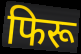
फिरू